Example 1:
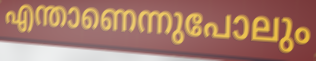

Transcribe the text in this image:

എന്താണെന്നുപോലും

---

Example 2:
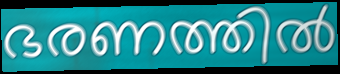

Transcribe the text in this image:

ഭരണത്തിൽ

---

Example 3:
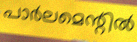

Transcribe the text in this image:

പാർലമെന്റിൽ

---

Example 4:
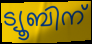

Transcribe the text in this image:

ട്യൂബിന്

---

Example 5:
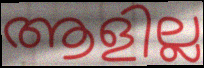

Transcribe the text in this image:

ആളില്ല